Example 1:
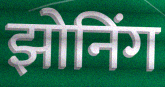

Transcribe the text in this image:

झोनिंग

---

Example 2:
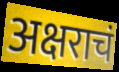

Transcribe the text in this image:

अक्षराचं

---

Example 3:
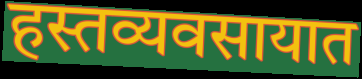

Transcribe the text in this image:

हस्तव्यवसायात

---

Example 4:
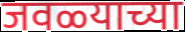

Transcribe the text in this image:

जवळ्याच्या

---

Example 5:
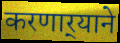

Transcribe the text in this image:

करणार्याने